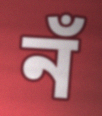
নঁ